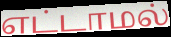
எட்டாமல்